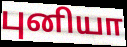
புனியா